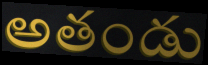
అతండు